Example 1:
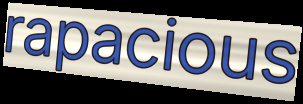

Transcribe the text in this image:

rapacious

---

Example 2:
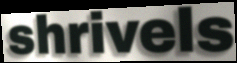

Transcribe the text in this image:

shrivels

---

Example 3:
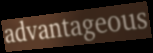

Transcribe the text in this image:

advantageous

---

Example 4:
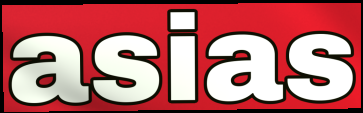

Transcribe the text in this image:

asias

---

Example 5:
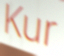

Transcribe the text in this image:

Kur